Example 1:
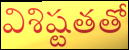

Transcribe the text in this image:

విశిష్టతతో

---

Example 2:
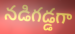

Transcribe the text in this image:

నడిగడ్డగా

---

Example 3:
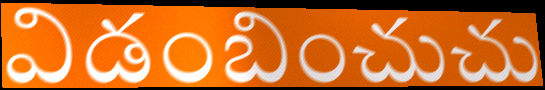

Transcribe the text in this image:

విడంబించుచు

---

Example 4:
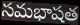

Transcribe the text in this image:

సమభాషత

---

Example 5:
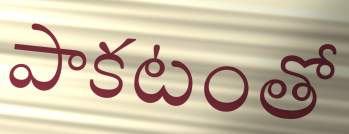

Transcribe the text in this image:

పాకటంతో